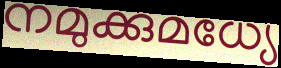
നമുക്കുമധ്യേ